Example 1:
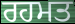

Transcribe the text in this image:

ਰਹਮਤ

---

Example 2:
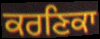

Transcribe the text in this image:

ਕਰਣਿਕਾ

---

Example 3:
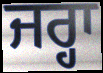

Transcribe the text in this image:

ਜਰ੍ਹਾ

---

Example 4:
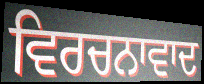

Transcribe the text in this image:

ਵਿਰਚਨਾਵਾਦ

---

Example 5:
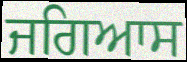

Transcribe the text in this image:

ਜਗਿਆਸ